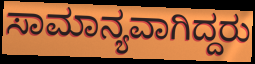
ಸಾಮಾನ್ಯವಾಗಿದ್ದರು